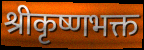
श्रीकृष्णभक्त